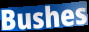
Bushes